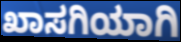
ಖಾಸಗಿಯಾಗಿ